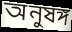
অনুষঙ্গ